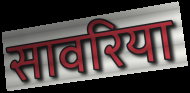
सावरिया